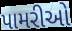
પામરીઓ